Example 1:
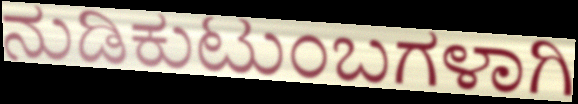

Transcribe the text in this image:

ನುಡಿಕುಟುಂಬಗಳಾಗಿ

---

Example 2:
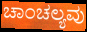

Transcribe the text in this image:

ಚಾಂಚಲ್ಯವು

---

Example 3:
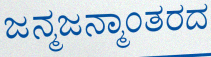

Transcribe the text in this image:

ಜನ್ಮಜನ್ಮಾಂತರದ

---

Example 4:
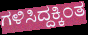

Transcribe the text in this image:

ಗಳಿಸಿದ್ದಕ್ಕಿಂತ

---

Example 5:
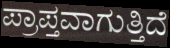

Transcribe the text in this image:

ಪ್ರಾಪ್ತವಾಗುತ್ತಿದೆ